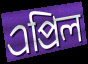
এপ্রিল